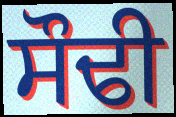
ਸੌਢੀ